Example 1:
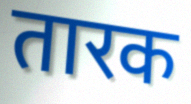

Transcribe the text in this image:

तारक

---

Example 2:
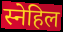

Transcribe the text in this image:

स्नेहिल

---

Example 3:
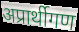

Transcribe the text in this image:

अप्रार्थीगण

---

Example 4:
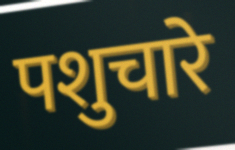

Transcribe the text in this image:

पशुचारे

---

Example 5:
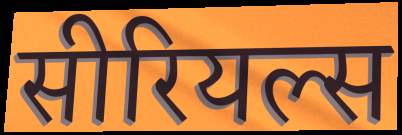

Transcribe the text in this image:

सीरियल्स